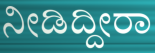
ನೀಡಿದ್ದೀರಾ